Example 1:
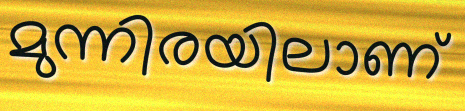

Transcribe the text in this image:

മുന്നിരയിലാണ്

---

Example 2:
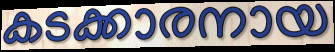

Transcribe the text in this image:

കടക്കാരനായ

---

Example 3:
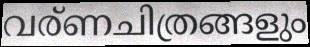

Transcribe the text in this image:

വര്ണചിത്രങ്ങളും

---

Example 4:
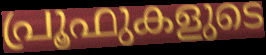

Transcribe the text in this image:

പ്രൂഫുകളുടെ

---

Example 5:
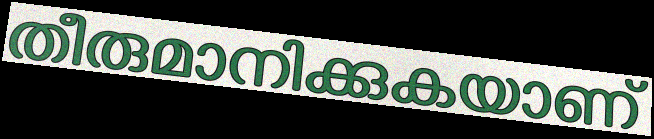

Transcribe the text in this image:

തീരുമാനിക്കുകയാണ്